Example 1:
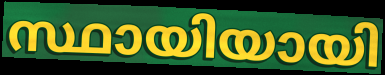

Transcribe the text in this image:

സ്ഥായിയായി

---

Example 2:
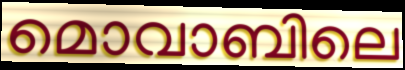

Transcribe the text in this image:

മൊവാബിലെ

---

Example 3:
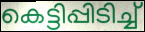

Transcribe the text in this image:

കെട്ടിപ്പിടിച്ച്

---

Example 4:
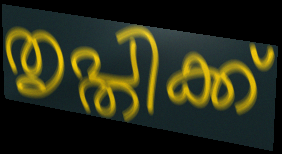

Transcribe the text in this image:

തൃപ്തിക്ക്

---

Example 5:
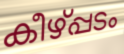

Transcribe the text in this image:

കീഴ്പ്പടം